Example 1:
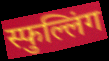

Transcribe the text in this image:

स्फुल्लिंग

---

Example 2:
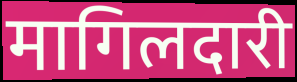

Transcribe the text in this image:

मागिलदारी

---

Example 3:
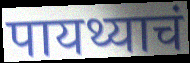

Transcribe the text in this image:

पायथ्याचं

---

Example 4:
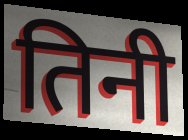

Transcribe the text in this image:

तिनी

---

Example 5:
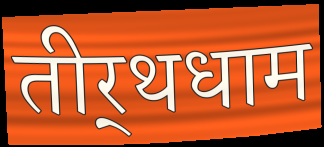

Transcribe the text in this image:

तीर्थधाम